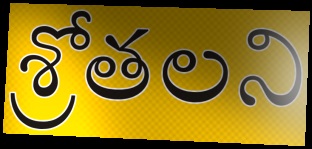
శ్రోతలని